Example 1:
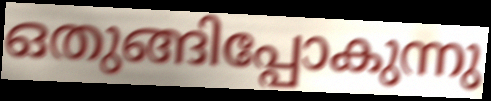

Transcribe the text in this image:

ഒതുങ്ങിപ്പോകുന്നു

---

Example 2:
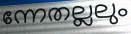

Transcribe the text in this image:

ന്നേതല്ലലും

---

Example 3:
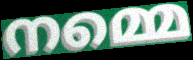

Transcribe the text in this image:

നമ്മെ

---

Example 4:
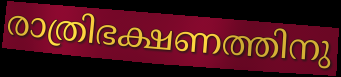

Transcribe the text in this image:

രാത്രിഭക്ഷണത്തിനു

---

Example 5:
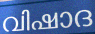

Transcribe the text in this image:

വിഷാദ